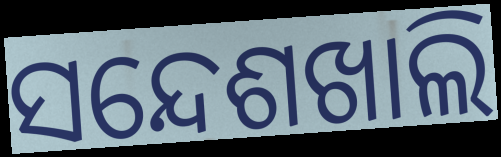
ସନ୍ଦେଶଖାଲି